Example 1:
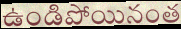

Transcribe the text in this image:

ఉండిపోయినంత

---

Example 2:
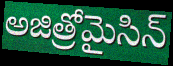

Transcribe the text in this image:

అజిత్రోమైసిన్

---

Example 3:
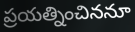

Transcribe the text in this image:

ప్రయత్నించిననూ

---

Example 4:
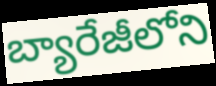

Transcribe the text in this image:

బ్యారేజీలోని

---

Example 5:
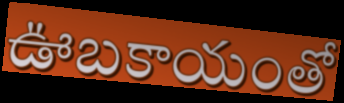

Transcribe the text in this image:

ఊబకాయంతో